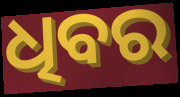
ଧିବର